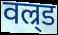
वल्र्ड